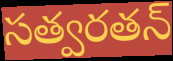
సత్వరతన్